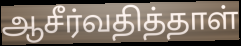
ஆசீர்வதித்தாள்